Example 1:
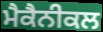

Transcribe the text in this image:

ਮੈਕੈਨੀਕਲ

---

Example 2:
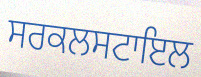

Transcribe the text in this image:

ਸਰਕਲਸਟਾਇਲ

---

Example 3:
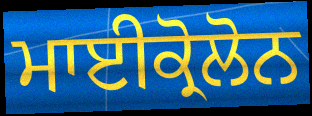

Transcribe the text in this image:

ਮਾਈਕ੍ਰੋਲੋਨ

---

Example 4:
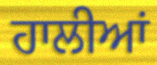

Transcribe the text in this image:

ਹਾਲੀਆਂ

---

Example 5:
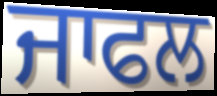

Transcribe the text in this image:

ਜਾਫਲ